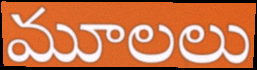
మూలలు